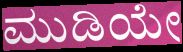
ಮುಡಿಯೇ